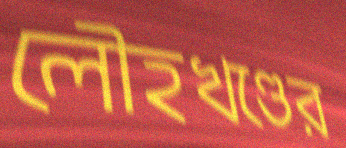
লৌহখণ্ডের